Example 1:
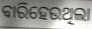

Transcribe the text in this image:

ବାରିହେଉଥିଲା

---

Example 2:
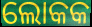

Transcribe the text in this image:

ଲୋକକ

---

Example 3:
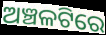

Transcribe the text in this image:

ଅଞ୍ଚଳଟିରେ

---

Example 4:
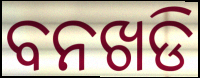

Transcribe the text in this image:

ବନଖଡି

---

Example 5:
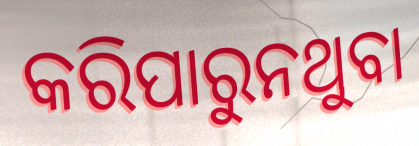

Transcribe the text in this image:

କରିପାରୁନଥୁବା